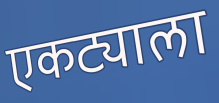
एकट्याला